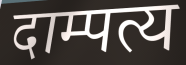
दाम्पत्य